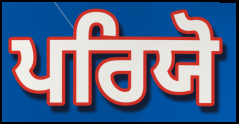
ਪਰਿਯੋ